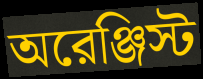
অরেঞ্জিস্ট